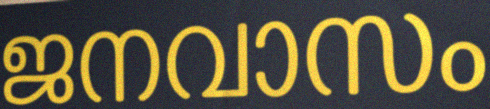
ജനവാസം